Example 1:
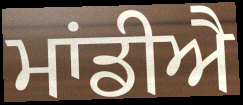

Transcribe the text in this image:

ਮਾਂਡੀਐ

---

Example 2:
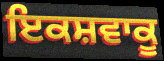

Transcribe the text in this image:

ਇਕਸ਼ਵਾਕੂ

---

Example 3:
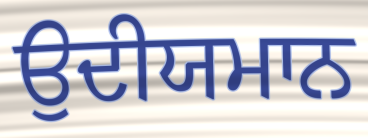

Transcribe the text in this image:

ਉਦੀਯਮਾਨ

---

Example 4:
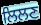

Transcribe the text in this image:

ਲਿਲਣ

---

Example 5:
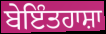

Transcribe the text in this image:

ਬੇਇੰਤਹਾਸ਼ਾ